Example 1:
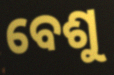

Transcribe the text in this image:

ବେଶୁ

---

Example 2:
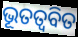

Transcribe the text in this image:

ଭୂତତ୍ଵବିତ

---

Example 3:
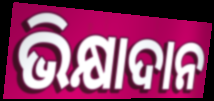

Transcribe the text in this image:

ଭିକ୍ଷାଦାନ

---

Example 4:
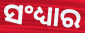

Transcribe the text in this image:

ସଂଧ୍ୟାର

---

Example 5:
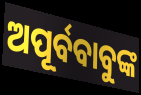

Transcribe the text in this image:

ଅପୂର୍ବବାବୁଙ୍କ